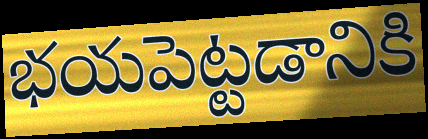
భయపెట్టడానికి